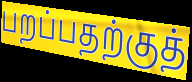
பறப்பதற்குத்